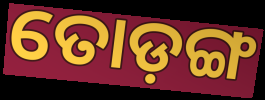
ତୋଡ଼ଙ୍ଗ